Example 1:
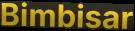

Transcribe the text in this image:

Bimbisar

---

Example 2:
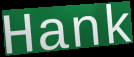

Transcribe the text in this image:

Hank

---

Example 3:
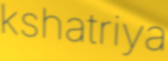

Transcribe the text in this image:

kshatriya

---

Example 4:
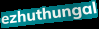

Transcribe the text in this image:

ezhuthungal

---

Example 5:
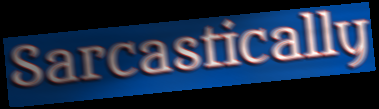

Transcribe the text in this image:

Sarcastically